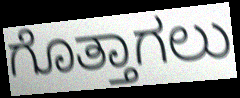
ಗೊತ್ತಾಗಲು